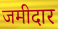
जमीदार